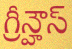
గ్రీన్హౌస్